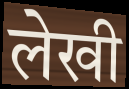
लेखी